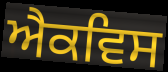
ਐਕਵਿਸ